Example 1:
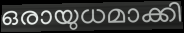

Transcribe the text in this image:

ഒരായുധമാക്കി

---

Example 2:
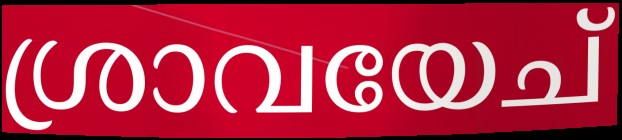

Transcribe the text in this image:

ശ്രാവയേച്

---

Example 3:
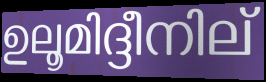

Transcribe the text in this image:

ഉലൂമിദ്ദീനില്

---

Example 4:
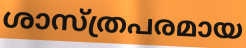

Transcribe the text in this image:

ശാസ്ത്രപരമായ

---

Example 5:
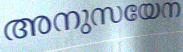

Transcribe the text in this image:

അനുസയേന